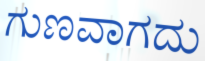
ಗುಣವಾಗದು